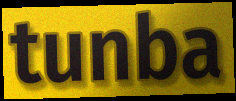
tunba